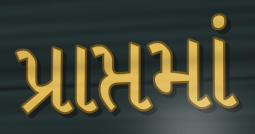
પ્રાપ્તમાં